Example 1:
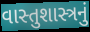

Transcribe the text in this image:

વાસ્તુશાસ્ત્રનું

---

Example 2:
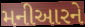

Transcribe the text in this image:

મનીઆરને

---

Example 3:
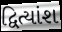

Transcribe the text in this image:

દ્વિત્યાંશ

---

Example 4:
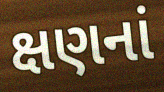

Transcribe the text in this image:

ક્ષણનાં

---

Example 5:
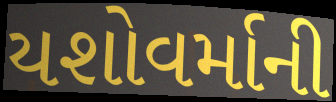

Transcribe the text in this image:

યશોવર્માની